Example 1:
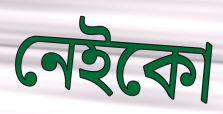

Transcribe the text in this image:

নেইকো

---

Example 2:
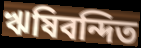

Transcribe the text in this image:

ঋষিবন্দিত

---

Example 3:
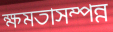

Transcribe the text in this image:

ক্ষমতাসম্পন্ন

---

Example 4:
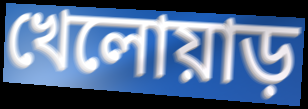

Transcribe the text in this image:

খেলোয়াড়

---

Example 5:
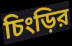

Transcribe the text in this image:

চিংড়ির